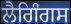
ਲੈਗਿੰਗਸ